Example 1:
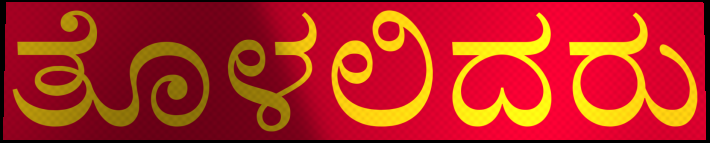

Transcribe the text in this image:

ತೊಳಲಿದರು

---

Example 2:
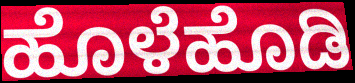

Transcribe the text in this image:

ಹೊಳೆಹೊಡಿ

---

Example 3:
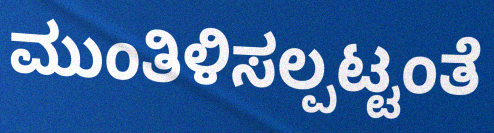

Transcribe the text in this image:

ಮುಂತಿಳಿಸಲ್ಪಟ್ಟಂತೆ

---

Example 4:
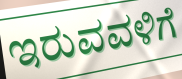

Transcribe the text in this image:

ಇರುವವಳಿಗೆ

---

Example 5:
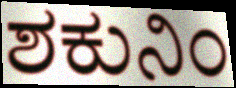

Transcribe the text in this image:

ಶಕುನಿಂ